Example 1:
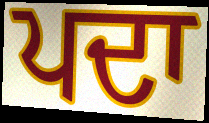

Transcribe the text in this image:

ਪਦਾ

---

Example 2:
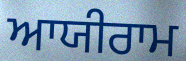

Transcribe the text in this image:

ਆਯੀਰਾਮ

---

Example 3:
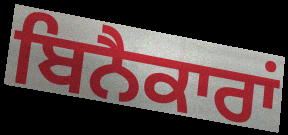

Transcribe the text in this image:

ਬਿਨੈਕਾਰਾਂ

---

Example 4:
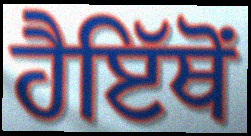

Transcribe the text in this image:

ਹੈਇੱਥੋਂ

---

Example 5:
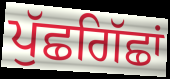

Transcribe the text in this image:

ਪੁੱਛਗਿੱਛਾਂ